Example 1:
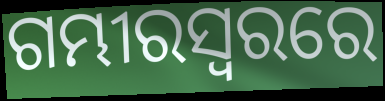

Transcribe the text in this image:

ଗମ୍ଭୀରସ୍ୱରରେ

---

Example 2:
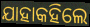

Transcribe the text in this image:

ଯାହାକହିଲେ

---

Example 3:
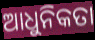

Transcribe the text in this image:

ଆଧୁନିକତା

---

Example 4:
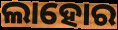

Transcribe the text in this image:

ଲାହୋର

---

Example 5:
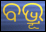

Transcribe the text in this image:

ବଭ୍ରୂ